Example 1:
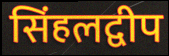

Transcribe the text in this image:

सिंहलद्वीप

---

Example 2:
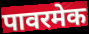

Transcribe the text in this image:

पावरमेक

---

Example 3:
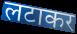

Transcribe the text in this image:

लटाकर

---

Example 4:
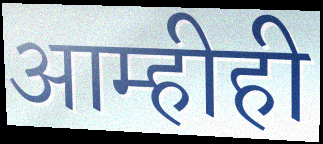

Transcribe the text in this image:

आम्हीही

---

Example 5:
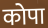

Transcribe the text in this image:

कोपा